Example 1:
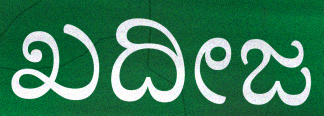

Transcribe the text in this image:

ಖದೀಜ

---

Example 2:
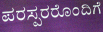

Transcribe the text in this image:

ಪರಸ್ಪರರೊಂದಿಗೆ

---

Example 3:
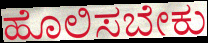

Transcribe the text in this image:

ಹೊಲಿಸಬೇಕು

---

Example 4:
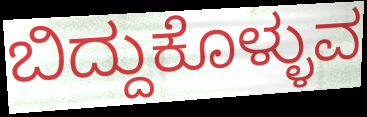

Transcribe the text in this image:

ಬಿದ್ದುಕೊಳ್ಳುವ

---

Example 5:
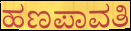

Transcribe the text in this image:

ಹಣಪಾವತಿ